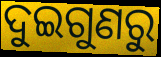
ଦୁଇଗୁଣରୁ